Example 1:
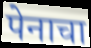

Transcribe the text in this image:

पेनाचा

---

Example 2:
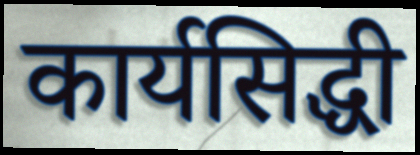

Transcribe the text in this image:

कार्यसिद्धी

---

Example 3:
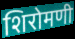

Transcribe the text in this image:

शिरोमणी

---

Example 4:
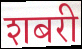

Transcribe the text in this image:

शबरी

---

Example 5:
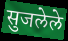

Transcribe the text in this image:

सुजलेले